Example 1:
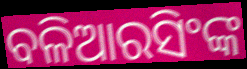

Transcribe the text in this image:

ବଳିଆରସିଂଙ୍କ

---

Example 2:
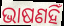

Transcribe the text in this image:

ଭାଷଣହିଁ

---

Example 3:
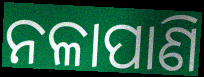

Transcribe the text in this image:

ନଳାପାଣି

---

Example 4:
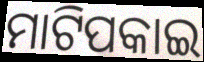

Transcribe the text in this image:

ମାଟିପକାଇ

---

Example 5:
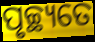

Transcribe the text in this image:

ପୃଚ୍ଛ୍ୟତେ